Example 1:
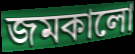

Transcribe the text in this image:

জমকালো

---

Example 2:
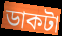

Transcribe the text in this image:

ডাকটা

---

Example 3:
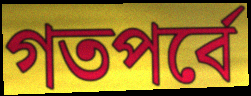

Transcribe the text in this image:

গতপর্বে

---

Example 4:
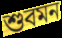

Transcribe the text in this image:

শুবমন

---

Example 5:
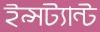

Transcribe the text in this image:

ইন্সট্যান্ট